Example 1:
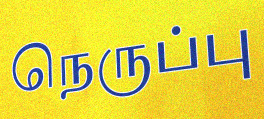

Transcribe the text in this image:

நெருப்பு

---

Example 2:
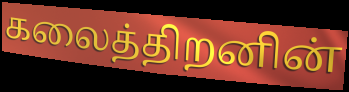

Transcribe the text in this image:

கலைத்திறனின்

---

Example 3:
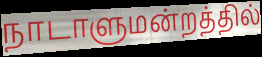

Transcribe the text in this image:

நாடாளுமன்றத்தில்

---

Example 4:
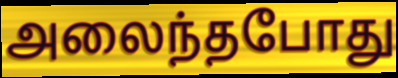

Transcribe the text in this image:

அலைந்தபோது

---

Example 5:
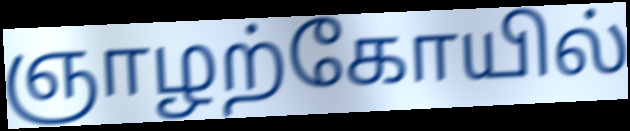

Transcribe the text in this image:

ஞாழற்கோயில்